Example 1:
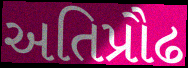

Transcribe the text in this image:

અતિપ્રૌઢ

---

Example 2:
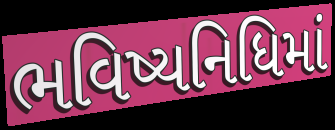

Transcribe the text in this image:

ભવિષ્યનિધિમાં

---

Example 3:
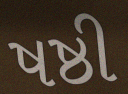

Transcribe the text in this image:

ષષ્ઠી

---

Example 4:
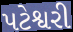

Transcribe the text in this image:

પટેશ્વરી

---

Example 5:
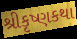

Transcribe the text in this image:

શ્રીકૃષ્ણકથા